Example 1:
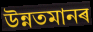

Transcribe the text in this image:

উন্নতমানৰ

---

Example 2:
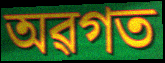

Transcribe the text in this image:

অৱগত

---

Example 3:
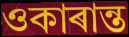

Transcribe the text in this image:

ওকাৰান্ত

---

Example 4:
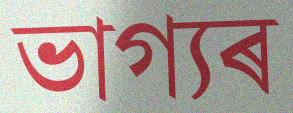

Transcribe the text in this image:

ভাগ্যৰ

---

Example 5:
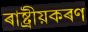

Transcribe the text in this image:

ৰাষ্ট্ৰীয়কৰণ